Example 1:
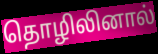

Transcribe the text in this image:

தொழிலினால்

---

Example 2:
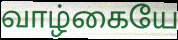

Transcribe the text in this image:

வாழ்கையே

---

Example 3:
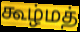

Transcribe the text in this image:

கூழ்மத்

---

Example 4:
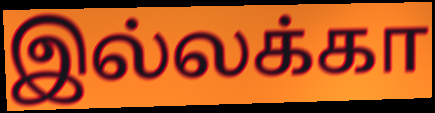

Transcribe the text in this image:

இல்லக்கா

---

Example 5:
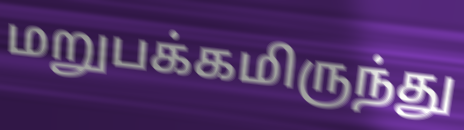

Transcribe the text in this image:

மறுபக்கமிருந்து